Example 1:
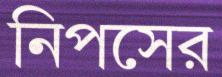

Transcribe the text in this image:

নিপসের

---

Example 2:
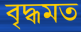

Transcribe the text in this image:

বৃদ্ধমত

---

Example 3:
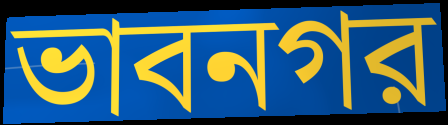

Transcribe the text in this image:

ভাবনগর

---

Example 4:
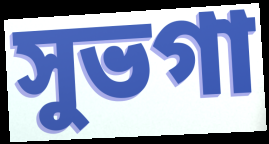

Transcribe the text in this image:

সুভগা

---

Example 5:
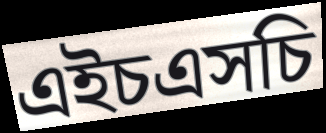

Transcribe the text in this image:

এইচএসচি